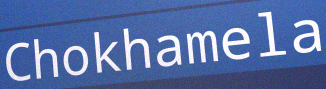
Chokhamela